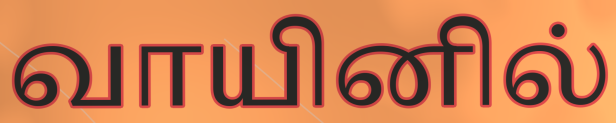
வாயினில்